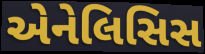
એનેલિસિસ